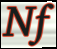
Nf